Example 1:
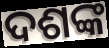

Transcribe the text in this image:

ଦଶଙ୍କ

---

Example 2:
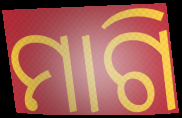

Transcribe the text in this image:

ମାଗି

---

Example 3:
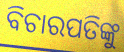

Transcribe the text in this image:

ବିଚାରପତିଙ୍କୁ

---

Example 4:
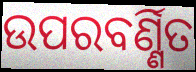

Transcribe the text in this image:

ଉପରବର୍ଣ୍ଣିତ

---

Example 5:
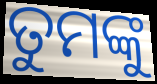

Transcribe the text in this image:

ତୁମଙ୍କୁ